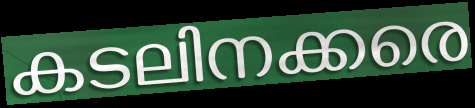
കടലിനക്കരെ